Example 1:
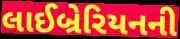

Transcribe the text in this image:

લાઈબ્રેરિયનની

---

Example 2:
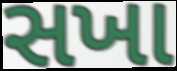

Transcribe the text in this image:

સખા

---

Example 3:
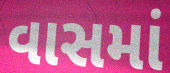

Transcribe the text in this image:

વાસમાં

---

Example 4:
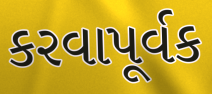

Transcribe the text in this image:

કરવાપૂર્વક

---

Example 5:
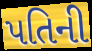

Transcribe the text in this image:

પતિની